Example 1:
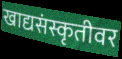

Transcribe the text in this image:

खाद्यसंस्कृतीवर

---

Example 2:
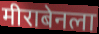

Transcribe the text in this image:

मीराबेनला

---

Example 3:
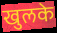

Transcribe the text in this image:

खुलके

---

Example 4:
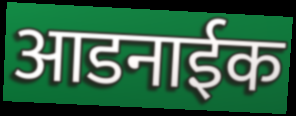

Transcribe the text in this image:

आडनाईक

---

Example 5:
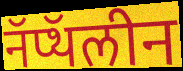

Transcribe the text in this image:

नॅप्थॅलीन